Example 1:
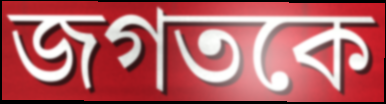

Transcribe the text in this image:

জগতকে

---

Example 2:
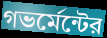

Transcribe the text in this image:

গভর্মেন্টের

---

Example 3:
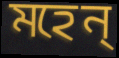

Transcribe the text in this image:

মহেন্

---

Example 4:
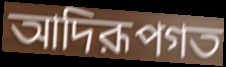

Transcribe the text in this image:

আদিরূপগত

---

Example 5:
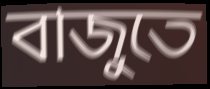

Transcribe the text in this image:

বাজুতে